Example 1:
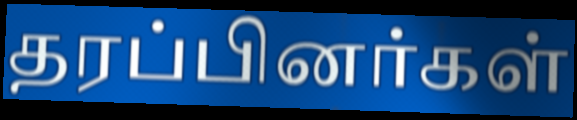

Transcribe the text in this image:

தரப்பினர்கள்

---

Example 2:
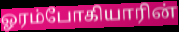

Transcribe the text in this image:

ஓரம்போகியாரின்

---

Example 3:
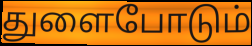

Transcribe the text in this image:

துளைபோடும்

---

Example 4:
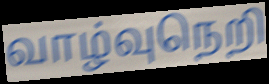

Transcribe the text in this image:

வாழ்வுநெறி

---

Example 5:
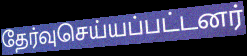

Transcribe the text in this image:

தேர்வுசெய்யப்பட்டனர்